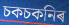
চকচকনিৰ